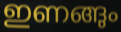
ഇണങ്ങും